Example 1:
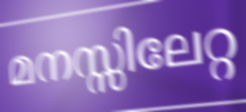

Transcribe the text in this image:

മനസ്സിലേറ്റ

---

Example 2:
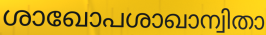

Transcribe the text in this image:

ശാഖോപശാഖാന്വിതാ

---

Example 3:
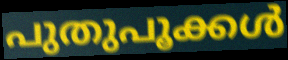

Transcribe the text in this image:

പുതുപൂക്കൾ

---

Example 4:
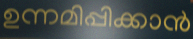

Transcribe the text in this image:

ഉന്നമിപ്പിക്കാൻ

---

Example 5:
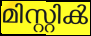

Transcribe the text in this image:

മിസ്റ്റിൿ